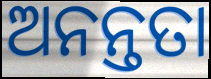
ଅନନ୍ତତା